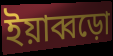
ইয়াব্বড়ো